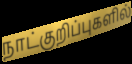
நாட்குறிப்புகளில்